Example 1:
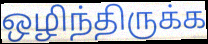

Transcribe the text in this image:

ஒழிந்திருக்க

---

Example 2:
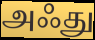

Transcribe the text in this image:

அஃது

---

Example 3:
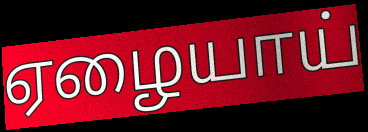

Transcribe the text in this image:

ஏழையாய்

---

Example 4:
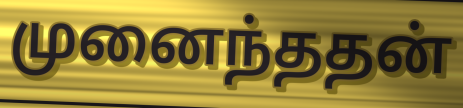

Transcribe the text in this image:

முனைந்ததன்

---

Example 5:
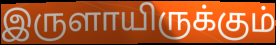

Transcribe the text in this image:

இருளாயிருக்கும்